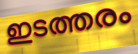
ഇടത്തരം